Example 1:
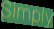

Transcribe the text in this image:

Simply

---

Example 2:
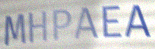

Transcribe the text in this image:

MHPAEA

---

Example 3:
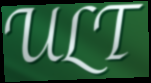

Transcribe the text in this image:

ULT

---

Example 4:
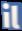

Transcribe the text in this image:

il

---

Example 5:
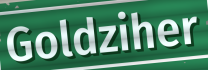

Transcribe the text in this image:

Goldziher